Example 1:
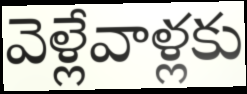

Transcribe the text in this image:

వెళ్లేవాళ్లకు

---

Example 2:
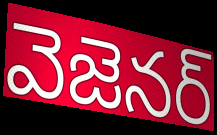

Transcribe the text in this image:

వెజెనర్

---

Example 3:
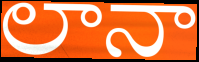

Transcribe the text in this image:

లానా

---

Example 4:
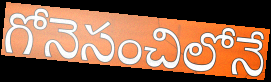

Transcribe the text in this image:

గోనెసంచిలోనే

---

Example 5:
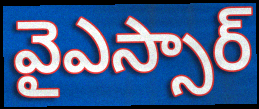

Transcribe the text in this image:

వైఎస్సార్